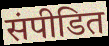
संपीडित